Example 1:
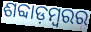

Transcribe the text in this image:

ଶବ୍ଦାଡ଼ମ୍ବରର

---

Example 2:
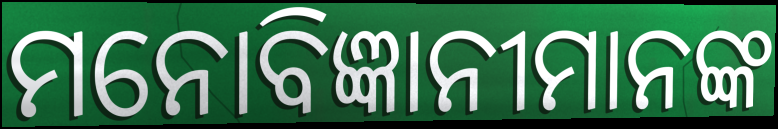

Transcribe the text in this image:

ମନୋବିଜ୍ଞାନୀମାନଙ୍କ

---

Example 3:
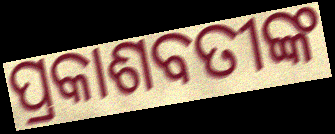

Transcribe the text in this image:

ପ୍ରକାଶବତୀଙ୍କ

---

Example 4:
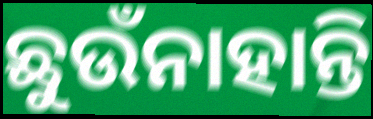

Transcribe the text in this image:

ଛୁଉଁନାହାନ୍ତି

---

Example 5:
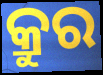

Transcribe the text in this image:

କ୍ରୁର